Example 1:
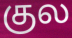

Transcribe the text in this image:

குல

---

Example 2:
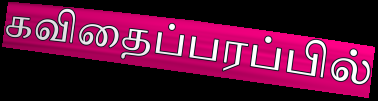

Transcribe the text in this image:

கவிதைப்பரப்பில்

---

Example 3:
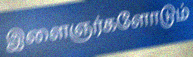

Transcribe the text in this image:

இளைஞர்களோடும்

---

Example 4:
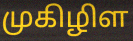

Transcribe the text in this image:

முகிழிள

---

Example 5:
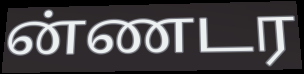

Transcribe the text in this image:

ன்ணடர